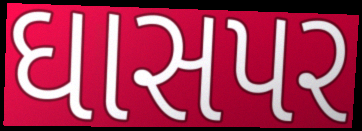
ઘાસપર